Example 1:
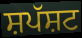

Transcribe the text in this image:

ਸ਼ਪੱਸ਼ਟ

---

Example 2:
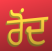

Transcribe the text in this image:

ਰੋਂਦ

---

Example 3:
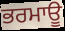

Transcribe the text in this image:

ਭਰਮਾਊ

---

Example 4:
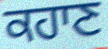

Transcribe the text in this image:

ਕਹਾਣ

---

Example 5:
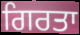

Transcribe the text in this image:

ਗਿਰਤਾ